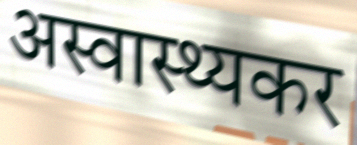
अस्वास्थ्यकर